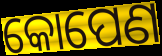
କୋପେଣ